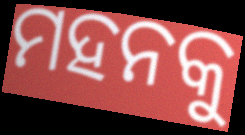
ମହନକୁ